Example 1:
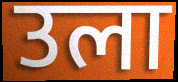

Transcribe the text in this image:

उला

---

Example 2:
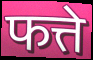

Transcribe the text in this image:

फत्ते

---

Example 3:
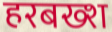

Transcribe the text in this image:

हरबख्श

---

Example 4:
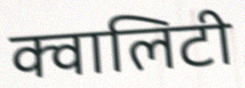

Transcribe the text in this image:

क्‍वालिटी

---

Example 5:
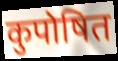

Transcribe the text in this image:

कुपोषित